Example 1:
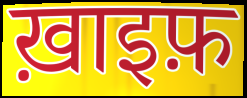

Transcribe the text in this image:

ख़ाइफ़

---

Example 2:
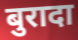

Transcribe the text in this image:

बुरादा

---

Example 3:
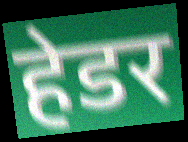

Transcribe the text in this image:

हेडर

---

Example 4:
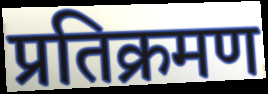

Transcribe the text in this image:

प्रतिक्रमण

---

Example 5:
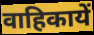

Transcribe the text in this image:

वाहिकायें